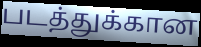
படத்துக்கான